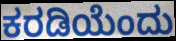
ಕರಡಿಯೆಂದು